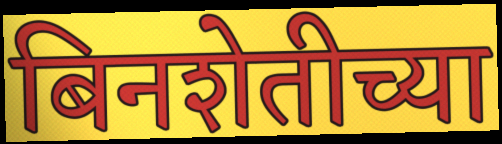
बिनशेतीच्या